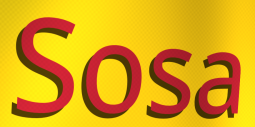
Sosa